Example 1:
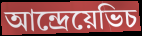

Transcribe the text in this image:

আন্দ্রেয়েভিচ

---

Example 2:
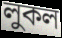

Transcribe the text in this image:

লুকল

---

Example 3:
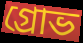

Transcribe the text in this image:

গ্রোভ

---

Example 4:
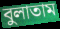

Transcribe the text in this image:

বুলাতাম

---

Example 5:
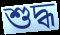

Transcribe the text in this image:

শুদ্ধ